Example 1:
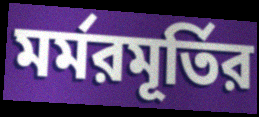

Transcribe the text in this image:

মর্মরমূর্তির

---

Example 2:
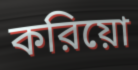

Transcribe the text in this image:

করিয়ো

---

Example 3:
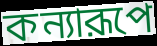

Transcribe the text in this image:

কন্যারূপে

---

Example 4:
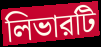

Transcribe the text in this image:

লিভারটি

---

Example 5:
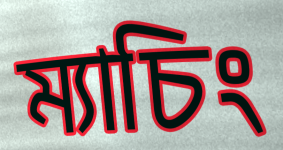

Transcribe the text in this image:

ম্যাচিং